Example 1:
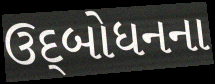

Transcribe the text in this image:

ઉદ્‌બોધનના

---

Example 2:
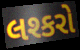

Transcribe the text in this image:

લશ્કરો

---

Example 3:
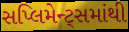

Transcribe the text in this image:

સપ્લિમેન્ટ્સમાંથી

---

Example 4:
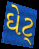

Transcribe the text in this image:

ઘેટ્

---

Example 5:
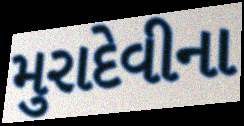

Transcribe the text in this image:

મુરાદેવીના